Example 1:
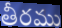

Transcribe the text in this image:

తీరము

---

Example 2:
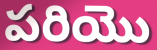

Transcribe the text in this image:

పరియొ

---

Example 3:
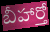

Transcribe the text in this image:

బీహార్తో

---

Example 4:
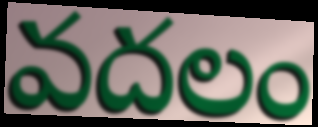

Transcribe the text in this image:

వదలం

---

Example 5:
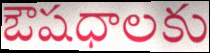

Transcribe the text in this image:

ఔషధాలకు